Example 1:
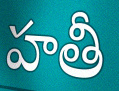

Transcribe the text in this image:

హతీ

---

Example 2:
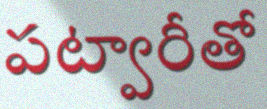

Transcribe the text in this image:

పట్వారీతో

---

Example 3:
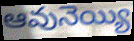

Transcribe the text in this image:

ఆవునెయ్యి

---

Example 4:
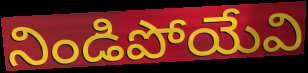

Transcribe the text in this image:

నిండిపోయేవి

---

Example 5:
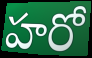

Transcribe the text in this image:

హరో